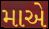
માએ